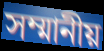
সম্মানীয়